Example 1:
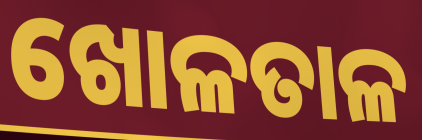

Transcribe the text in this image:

ଖୋଳତାଳ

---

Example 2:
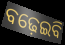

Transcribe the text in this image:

ବଢ଼େଇବି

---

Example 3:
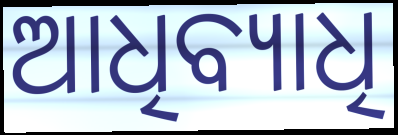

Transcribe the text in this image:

ଆଧିବ୍ୟାଧି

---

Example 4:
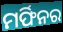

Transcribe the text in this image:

ମର୍ଫିନର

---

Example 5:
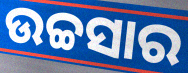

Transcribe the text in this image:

ଉଚ୍ଚସାର